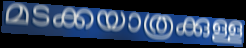
മടക്കയാത്രക്കുള്ള